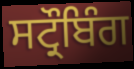
ਸਟ੍ਰੌਬਿੰਗ